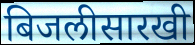
बिजलीसारखी